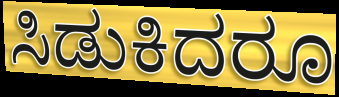
ಸಿಡುಕಿದರೂ